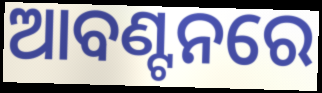
ଆବଣ୍ଟନରେ